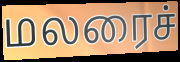
மலரைச்